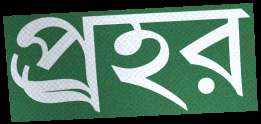
প্র্রহর